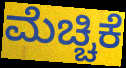
ಮೆಚ್ಚಿಕೆ